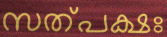
സത്പക്ഷഃ